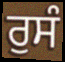
ਰੁਸੰ